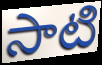
సాటి